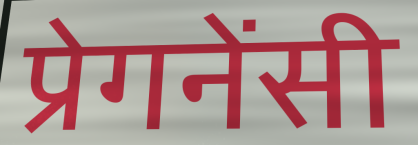
प्रेगनेंसी